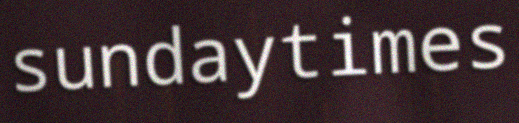
sundaytimes